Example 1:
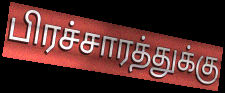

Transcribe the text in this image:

பிரச்சாரத்துக்கு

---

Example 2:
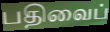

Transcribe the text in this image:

பதிவைப்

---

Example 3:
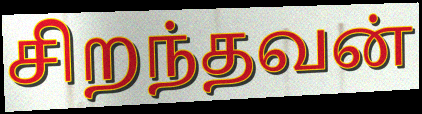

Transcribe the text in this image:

சிறந்தவன்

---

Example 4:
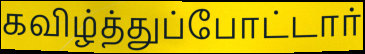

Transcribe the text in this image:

கவிழ்த்துப்போட்டார்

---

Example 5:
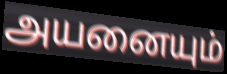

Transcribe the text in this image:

அயனையும்